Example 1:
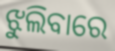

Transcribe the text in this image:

ଝୁଲିବାରେ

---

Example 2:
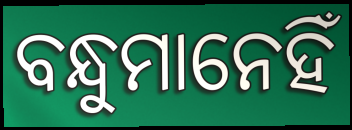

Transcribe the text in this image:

ବନ୍ଧୁମାନେହିଁ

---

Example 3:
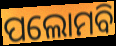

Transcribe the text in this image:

ପଲୋମବି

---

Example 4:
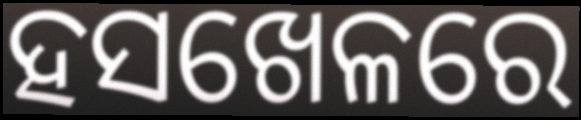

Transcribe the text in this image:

ହସଖେଳରେ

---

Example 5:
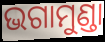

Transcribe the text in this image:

ଭଗାମୁଣ୍ଡା